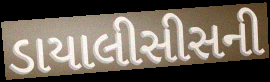
ડાયાલીસીસની